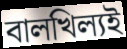
বালখিল্যই